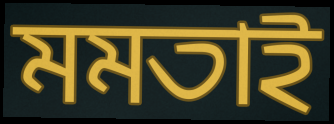
মমতাই